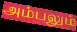
அம்பலும்